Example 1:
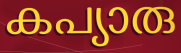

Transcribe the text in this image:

കപ്യാരു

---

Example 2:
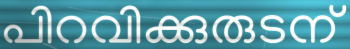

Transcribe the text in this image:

പിറവിക്കുരുടന്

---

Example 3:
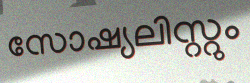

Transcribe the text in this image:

സോഷ്യലിസ്റ്റും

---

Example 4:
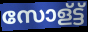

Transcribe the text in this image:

സോള്ട്ട്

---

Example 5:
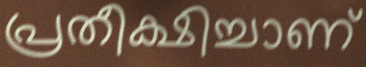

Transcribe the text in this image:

പ്രതീക്ഷിച്ചാണ്